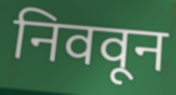
निववून